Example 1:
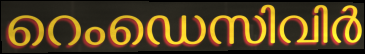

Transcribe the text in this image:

റെംഡെസിവിർ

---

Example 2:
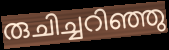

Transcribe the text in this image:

രുചിച്ചറിഞ്ഞു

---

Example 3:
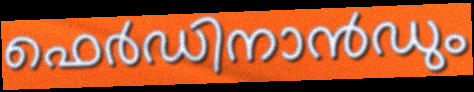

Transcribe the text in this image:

ഫെർഡിനാൻഡും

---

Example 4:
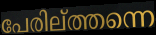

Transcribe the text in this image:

പേരില്ത്തന്നെ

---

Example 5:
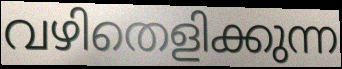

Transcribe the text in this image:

വഴിതെളിക്കുന്ന